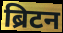
ब्रिटन